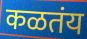
कळतंय